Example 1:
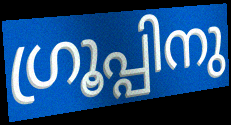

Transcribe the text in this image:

ഗ്രൂപ്പിനു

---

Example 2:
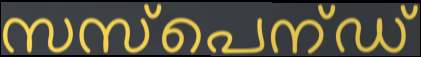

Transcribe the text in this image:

സസ്പെന്ഡ്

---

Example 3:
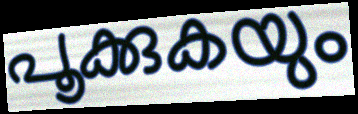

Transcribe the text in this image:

പൂക്കുകയും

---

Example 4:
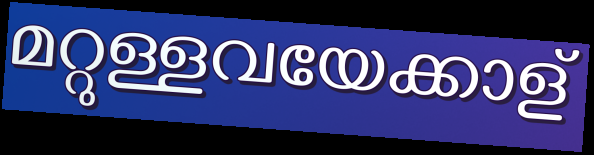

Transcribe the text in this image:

മറ്റുള്ളവയേക്കാള്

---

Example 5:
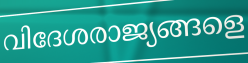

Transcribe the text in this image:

വിദേശരാജ്യങ്ങളെ